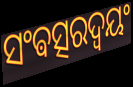
ସଂଵତ୍ସରଦ୍ଵୟଂ